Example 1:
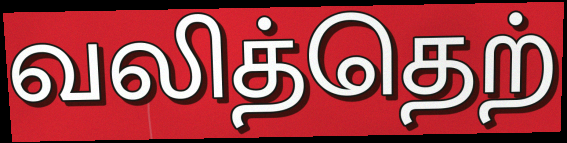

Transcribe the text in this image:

வலித்தெற்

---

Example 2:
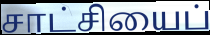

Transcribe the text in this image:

சாட்சியைப்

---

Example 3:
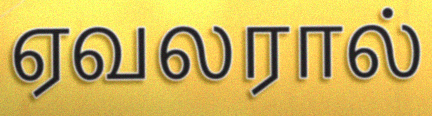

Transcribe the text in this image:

ஏவலரால்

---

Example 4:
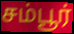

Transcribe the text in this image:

சம்பூர்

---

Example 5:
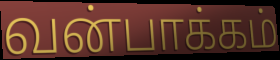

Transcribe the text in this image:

வன்பாக்கம்